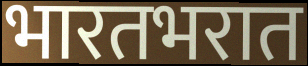
भारतभरात